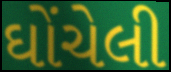
ઘોંચેલી